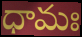
ధామః